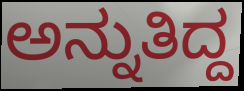
ಅನ್ನುತಿದ್ದ